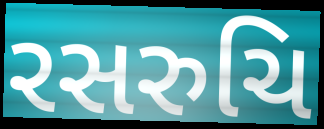
રસરુચિ